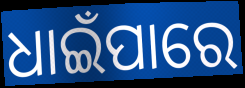
ଧାଇଁପାରେ